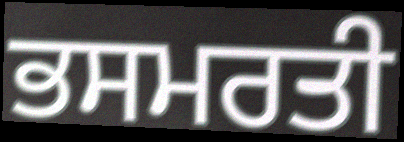
ਭਸਮਰਤੀ